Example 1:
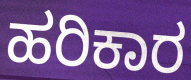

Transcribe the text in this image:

ಹರಿಕಾರ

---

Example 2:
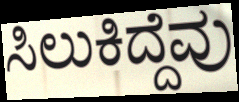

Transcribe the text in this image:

ಸಿಲುಕಿದ್ದೆವು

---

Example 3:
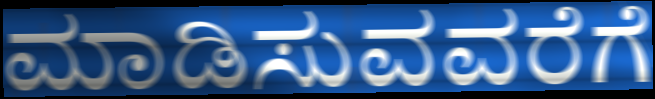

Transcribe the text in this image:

ಮಾಡಿಸುವವರೆಗೆ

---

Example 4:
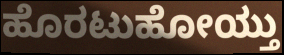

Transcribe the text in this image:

ಹೊರಟುಹೋಯ್ತು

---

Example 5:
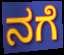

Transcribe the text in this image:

ನಗೆ